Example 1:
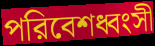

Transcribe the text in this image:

পরিবেশধ্বংসী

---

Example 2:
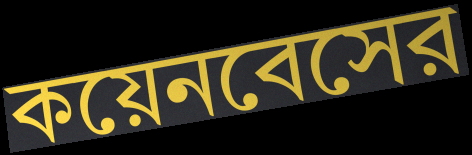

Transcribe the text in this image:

কয়েনবেসের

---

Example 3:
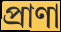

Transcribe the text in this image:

প্রাণা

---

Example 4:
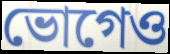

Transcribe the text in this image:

ভোগেও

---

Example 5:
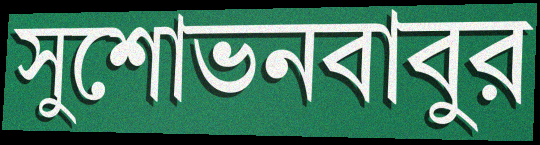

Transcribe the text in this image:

সুশোভনবাবুর